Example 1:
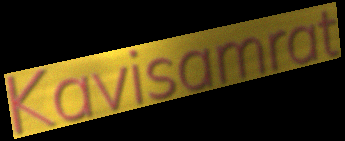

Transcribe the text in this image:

Kavisamrat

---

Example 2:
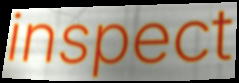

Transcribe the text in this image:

inspect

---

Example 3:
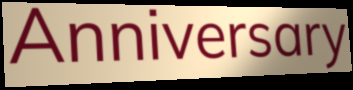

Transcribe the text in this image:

Anniversary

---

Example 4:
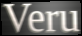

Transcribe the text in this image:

Veru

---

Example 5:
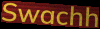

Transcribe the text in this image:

Swachh